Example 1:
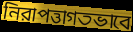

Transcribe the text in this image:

নিরাপত্তাগতভাবে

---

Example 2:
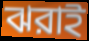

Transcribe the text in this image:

ঝরাই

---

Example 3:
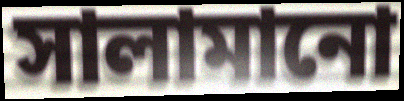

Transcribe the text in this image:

সালামানো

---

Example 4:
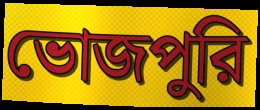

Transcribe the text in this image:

ভোজপুরি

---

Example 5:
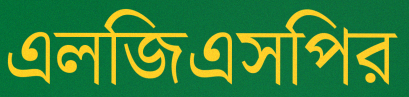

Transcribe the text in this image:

এলজিএসপির